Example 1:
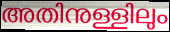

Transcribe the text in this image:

അതിനുള്ളിലും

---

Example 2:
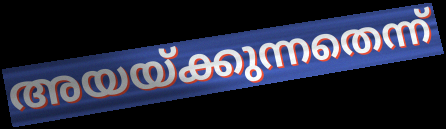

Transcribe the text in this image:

അയയ്ക്കുന്നതെന്ന്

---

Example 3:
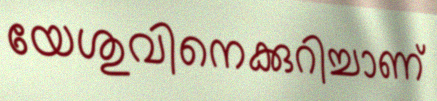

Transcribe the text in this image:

യേശുവിനെക്കുറിച്ചാണ്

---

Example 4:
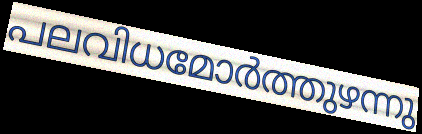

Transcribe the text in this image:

പലവിധമോർത്തുഴന്നു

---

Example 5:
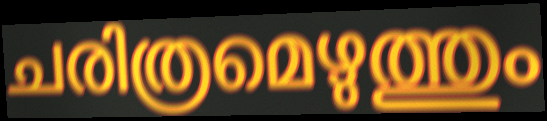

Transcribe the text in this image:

ചരിത്രമെഴുത്തും